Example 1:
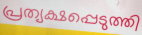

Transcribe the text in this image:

പ്രത്യക്ഷപ്പെടുത്തി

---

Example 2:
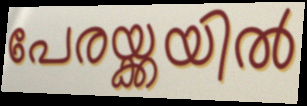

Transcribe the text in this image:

പേരയ്ക്കയിൽ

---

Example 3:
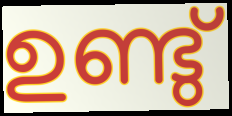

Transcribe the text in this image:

ഉണ്ടു്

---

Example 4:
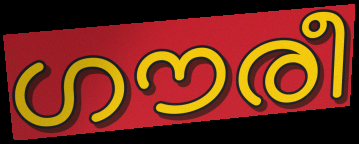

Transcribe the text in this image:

ഗൗരീ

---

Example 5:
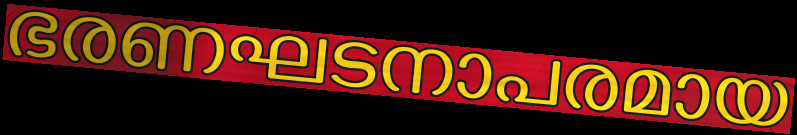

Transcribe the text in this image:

ഭരണഘടനാപരമായ